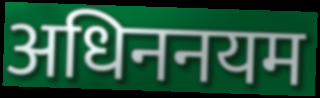
अधिननयम